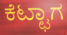
ಕೆಟ್ಟಾಗ